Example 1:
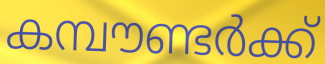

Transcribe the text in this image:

കമ്പൗണ്ടർക്ക്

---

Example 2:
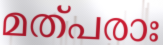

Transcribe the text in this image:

മത്പരാഃ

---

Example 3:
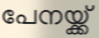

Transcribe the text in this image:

പേനയ്ക്ക്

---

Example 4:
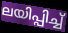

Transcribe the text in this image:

ലയിപ്പിച്ച്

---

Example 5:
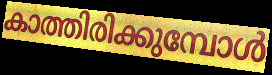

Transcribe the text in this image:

കാത്തിരിക്കുമ്പോൾ